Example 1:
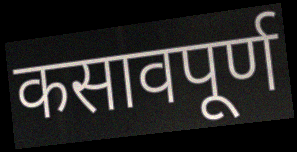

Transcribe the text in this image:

कसावपूर्ण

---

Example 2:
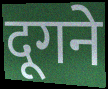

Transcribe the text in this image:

दूगने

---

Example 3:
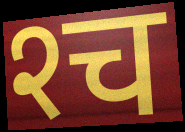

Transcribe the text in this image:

श्च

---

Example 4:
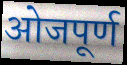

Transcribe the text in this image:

ओजपूर्ण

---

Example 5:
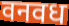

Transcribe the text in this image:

वनवध